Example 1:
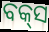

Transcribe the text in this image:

ବକ୍‌ସ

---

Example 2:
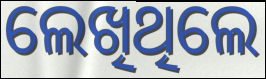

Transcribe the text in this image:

ଲେଖିଥିଲେ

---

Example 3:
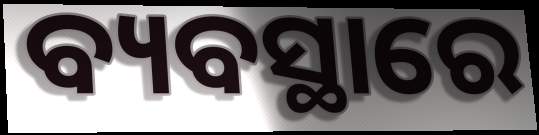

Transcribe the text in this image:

ବ୍ୟବସ୍ଥାରେ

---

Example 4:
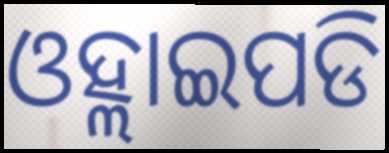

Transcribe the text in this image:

ଓହ୍ଲାଇପଡି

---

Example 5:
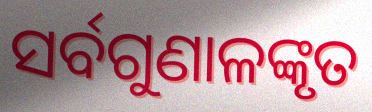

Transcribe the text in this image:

ସର୍ବଗୁଣାଳଙ୍କୃତ